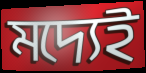
মদ্যেই